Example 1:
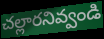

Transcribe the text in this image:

చల్లారనివ్వండి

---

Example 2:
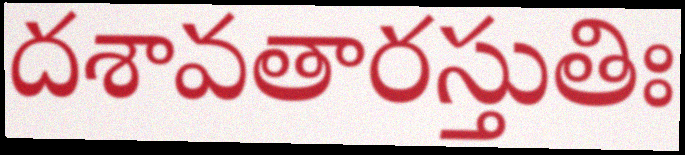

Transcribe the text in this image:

దశావతారస్తుతిః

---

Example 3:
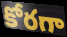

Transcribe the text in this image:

కోరగా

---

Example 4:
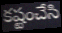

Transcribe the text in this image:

కష్టంచేసి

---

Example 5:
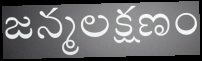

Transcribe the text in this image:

జన్మలక్షణం